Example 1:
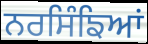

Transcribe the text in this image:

ਨਰਸਿੰਙਿਆਂ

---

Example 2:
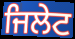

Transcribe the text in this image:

ਜਿਲੇਟ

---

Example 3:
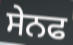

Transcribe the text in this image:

ਸੇਨਫ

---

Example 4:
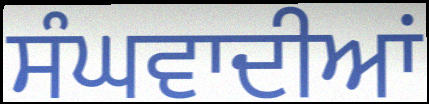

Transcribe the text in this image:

ਸੰਘਵਾਦੀਆਂ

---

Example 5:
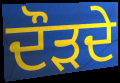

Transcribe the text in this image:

ਦੌੜਦੇ